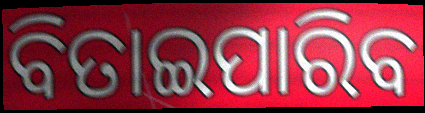
ବିତାଇପାରିବ